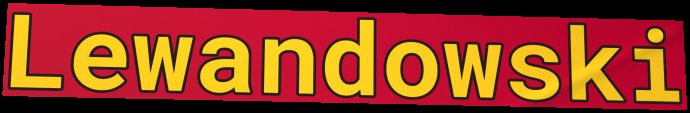
Lewandowski